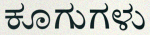
ಕೂಗುಗಳು